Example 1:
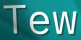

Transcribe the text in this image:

Tew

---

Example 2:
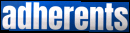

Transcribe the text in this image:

adherents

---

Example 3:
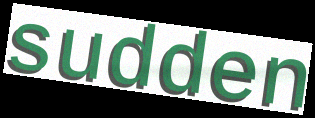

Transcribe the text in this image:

sudden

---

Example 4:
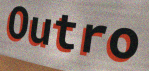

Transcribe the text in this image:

Outro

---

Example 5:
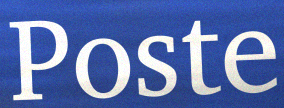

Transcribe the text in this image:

Poste